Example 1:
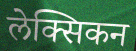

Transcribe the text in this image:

लेक्सिकन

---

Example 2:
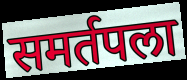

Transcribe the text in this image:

समर्तपला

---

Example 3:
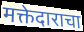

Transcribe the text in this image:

मक्तेदाराचा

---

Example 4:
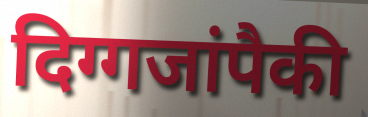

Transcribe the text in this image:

दिग्गजांपैकी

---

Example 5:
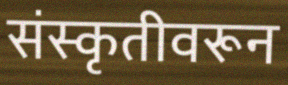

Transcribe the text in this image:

संस्कृतीवरून